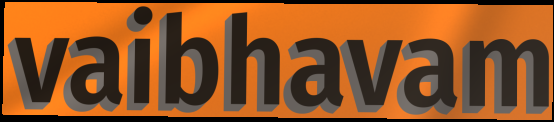
vaibhavam